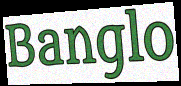
Banglo